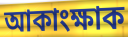
আকাংক্ষাক